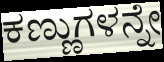
ಕಣ್ಣುಗಳನ್ನೇ